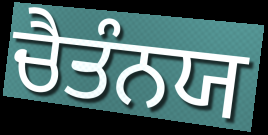
ਚੈਤੰਨਯ